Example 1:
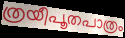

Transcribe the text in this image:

ത്രയീപൂതപാത്രം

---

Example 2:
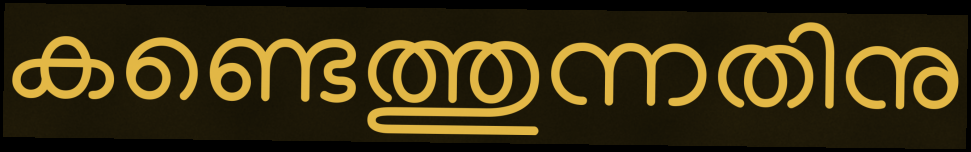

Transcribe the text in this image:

കണ്ടെത്തുന്നതിനു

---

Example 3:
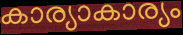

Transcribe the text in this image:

കാര്യാകാര്യം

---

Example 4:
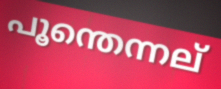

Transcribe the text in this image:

പൂന്തെന്നല്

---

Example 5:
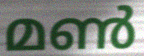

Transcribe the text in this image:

മൺ